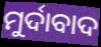
ମୁର୍ଦାବାଦ